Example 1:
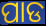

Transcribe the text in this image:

ପାଡ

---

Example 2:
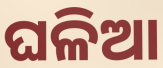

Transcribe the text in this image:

ଘଳିଆ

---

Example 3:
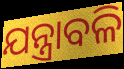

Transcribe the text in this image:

ଯନ୍ତ୍ରାବଳି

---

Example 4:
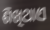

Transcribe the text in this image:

ଶିଖିଥାଏ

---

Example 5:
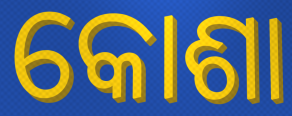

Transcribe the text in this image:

କୋଶା